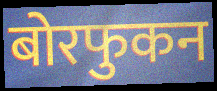
बोरफुकन